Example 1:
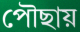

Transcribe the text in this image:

পৌছায়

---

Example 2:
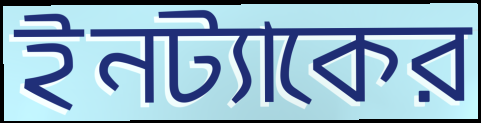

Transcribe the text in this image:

ইনট্যাকের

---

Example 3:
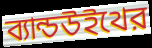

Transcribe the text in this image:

ব্যান্ডউইথের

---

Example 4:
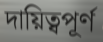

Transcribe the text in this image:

দায়িত্বপূর্ণ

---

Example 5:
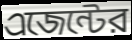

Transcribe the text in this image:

এজেন্টের